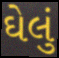
ઘેલું